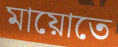
মায়োতে